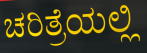
ಚರಿತ್ರೆಯಲ್ಲಿ